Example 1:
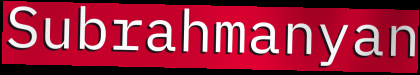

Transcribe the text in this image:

Subrahmanyan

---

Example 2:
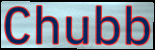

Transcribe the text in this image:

Chubb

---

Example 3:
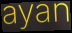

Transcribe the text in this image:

ayan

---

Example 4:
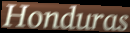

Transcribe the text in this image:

Honduras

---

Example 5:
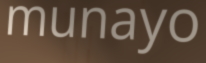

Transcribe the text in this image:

munayo